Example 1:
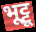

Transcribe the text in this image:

भूट्टू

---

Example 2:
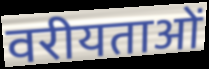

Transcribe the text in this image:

वरीयताओं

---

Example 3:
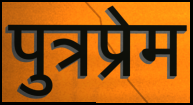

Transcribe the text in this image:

पुत्रप्रेम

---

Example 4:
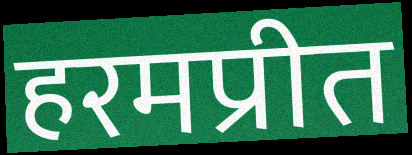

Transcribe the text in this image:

हरमप्रीत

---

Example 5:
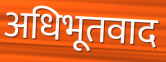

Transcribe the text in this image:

अधिभूतवाद